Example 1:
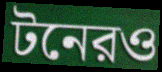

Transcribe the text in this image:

টনেরও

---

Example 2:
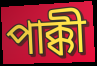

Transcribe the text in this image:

পাক্কী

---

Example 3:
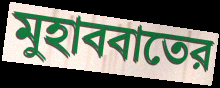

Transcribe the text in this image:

মুহাববাতের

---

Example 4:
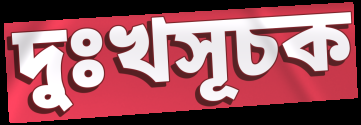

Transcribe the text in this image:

দুঃখসূচক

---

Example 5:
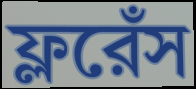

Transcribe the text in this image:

ফ্লরেঁস